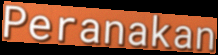
Peranakan